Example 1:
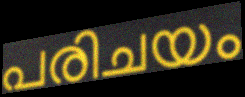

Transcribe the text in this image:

പരിചയം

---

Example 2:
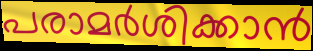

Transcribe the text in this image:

പരാമർശിക്കാൻ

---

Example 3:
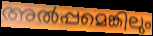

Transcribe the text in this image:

അൽപ്പമെങ്കിലും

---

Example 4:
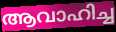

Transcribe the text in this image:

ആവാഹിച്ച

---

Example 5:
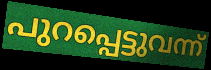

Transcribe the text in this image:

പുറപ്പെട്ടുവന്ന്